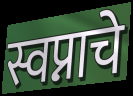
स्वप्नाचे